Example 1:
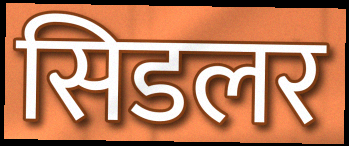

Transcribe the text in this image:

सिडलर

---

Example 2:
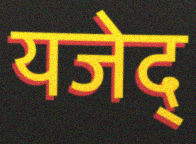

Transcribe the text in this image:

यजेद्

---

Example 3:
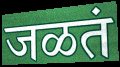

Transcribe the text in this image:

जळतं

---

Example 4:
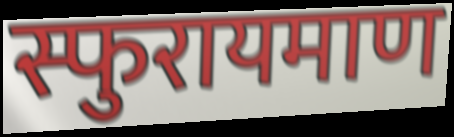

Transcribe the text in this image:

स्फुरायमाण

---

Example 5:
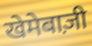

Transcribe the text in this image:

खेमेबाज़ी